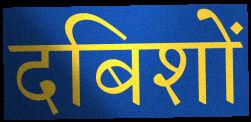
दबिशों